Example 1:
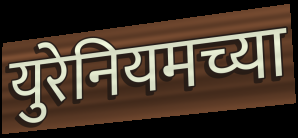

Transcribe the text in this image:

युरेनियमच्या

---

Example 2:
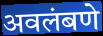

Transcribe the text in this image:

अवलंबणे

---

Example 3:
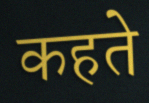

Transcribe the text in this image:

कहते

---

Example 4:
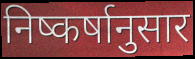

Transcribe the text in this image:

निष्कर्षानुसार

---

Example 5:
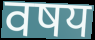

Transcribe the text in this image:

वषय